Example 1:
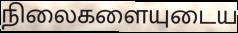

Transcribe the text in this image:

நிலைகளையுடைய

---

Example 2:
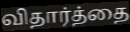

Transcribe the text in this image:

விதார்த்தை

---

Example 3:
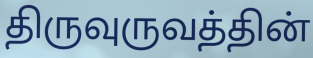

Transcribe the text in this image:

திருவுருவத்தின்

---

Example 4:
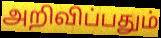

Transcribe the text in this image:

அறிவிப்பதும்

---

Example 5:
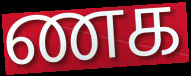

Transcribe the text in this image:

ணக